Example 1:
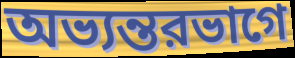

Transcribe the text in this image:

অভ্যন্তরভাগে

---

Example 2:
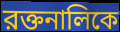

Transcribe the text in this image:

রক্তনালিকে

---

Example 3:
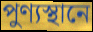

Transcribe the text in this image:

পুণ্যস্থানে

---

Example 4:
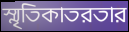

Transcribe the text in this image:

স্মৃতিকাতরতার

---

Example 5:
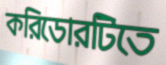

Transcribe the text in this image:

করিডোরটিতে